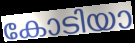
കോടിയാ